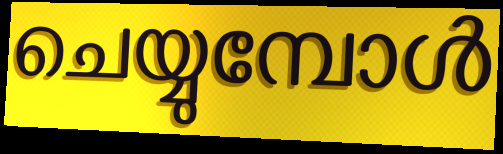
ചെയ്യുമ്പോൾ